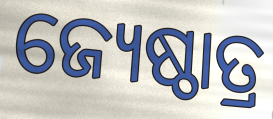
ଜ୍ୟେଷ୍ଠାତ୍ର